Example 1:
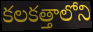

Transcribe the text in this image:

కలకత్తాలోని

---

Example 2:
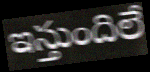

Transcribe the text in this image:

ఇస్తుందిలే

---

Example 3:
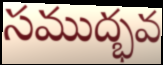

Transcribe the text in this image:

సముద్భవ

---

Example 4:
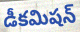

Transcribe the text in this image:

డీకమిషన్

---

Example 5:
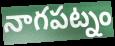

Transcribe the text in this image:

నాగపట్నం